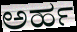
ಅರ್ಹ